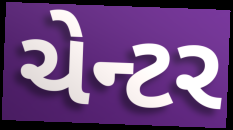
ચેન્ટર